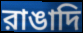
রাঙাদি